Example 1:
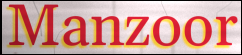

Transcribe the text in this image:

Manzoor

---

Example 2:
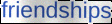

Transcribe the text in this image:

friendships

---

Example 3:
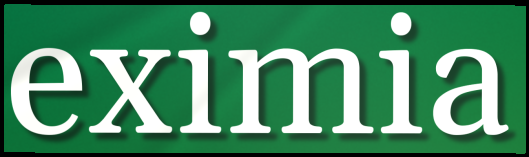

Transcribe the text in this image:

eximia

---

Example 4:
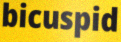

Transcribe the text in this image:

bicuspid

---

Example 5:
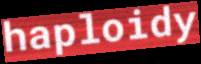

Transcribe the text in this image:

haploidy